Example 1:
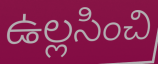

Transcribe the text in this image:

ఉల్లసించి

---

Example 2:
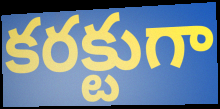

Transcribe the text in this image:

కరక్టుగా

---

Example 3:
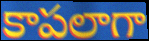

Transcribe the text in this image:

కాపలాగా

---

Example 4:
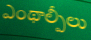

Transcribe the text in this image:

ఎంథాల్పీలు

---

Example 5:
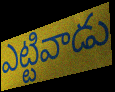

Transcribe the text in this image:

ఎట్టివాడు